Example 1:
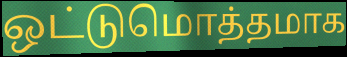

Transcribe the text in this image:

ஒட்டுமொத்தமாக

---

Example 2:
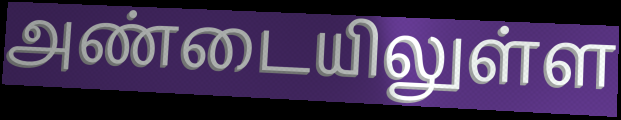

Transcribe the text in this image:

அண்டையிலுள்ள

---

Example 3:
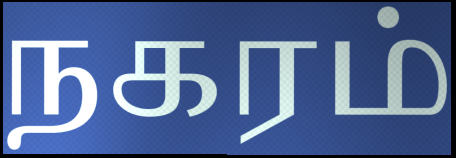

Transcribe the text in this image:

நகரம்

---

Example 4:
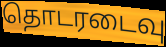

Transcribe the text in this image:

தொடரடைவு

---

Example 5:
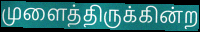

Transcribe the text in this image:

முளைத்திருக்கின்ற